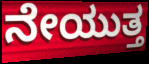
ನೇಯುತ್ತ